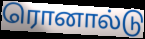
ரொனால்டு